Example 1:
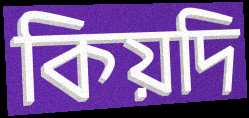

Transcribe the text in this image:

কিয়দি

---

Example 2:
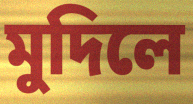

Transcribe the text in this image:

মুদিলে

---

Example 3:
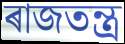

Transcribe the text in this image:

ৰাজতন্ত্ৰ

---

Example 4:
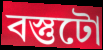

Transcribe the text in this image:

বস্তুটো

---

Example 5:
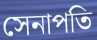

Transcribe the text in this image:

সেনাপতি